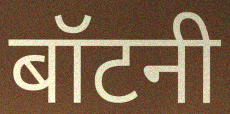
बॉटनी